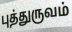
புத்துருவம்